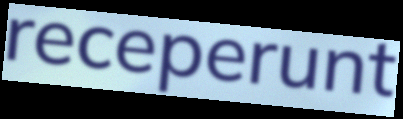
receperunt